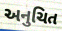
અનુચિત